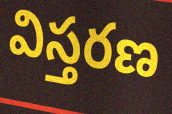
విస్తరణ